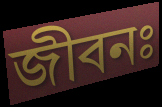
জীবনঃ